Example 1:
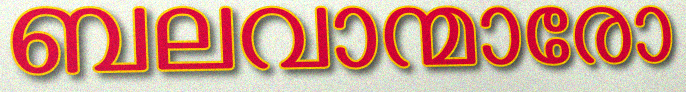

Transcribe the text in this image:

ബലവാന്മാരോ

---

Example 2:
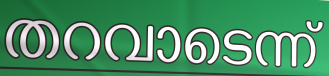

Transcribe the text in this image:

തറവാടെന്ന്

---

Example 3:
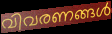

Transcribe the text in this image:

വിവരണങ്ങൾ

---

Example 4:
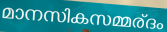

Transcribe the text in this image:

മാനസികസമ്മര്ദം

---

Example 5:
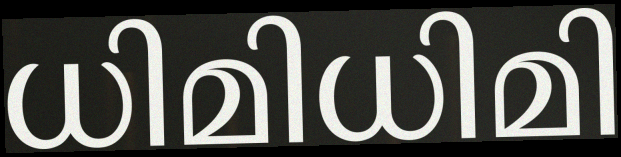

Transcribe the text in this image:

ധിമിധിമി